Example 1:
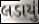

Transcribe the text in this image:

લડાયું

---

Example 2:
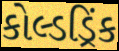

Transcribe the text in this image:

કોલ્ડડ્રિંક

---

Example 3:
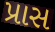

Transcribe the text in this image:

પ્રાસ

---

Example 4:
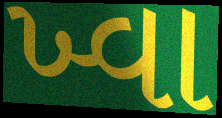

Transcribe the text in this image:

ખ્વા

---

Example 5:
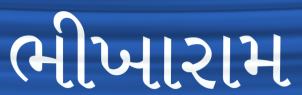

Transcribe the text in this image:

ભીખારામ